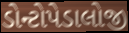
ડોન્ટોપેડાલોજી